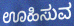
ಊಹಿಸುವ